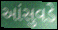
આંસુવડે